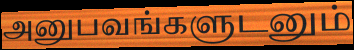
அனுபவங்களுடனும்